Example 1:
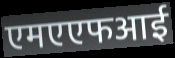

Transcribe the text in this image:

एमएएफआई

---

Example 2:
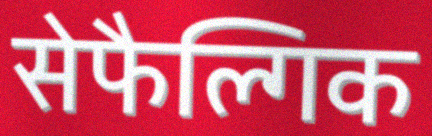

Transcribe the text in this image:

सेफैल्गिक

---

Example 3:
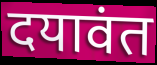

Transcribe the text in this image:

दयावंत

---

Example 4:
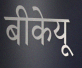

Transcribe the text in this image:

बीकेयू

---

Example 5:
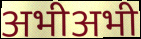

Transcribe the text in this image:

अभीअभी